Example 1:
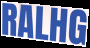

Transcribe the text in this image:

RALHG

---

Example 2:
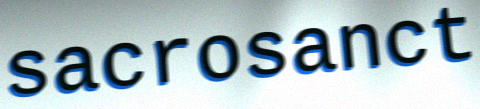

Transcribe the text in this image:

sacrosanct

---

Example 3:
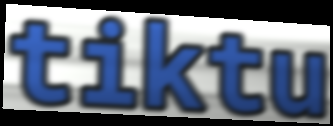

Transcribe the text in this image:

tiktu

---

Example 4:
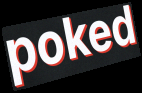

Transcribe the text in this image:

poked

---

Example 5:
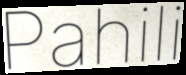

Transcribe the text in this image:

Pahili